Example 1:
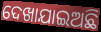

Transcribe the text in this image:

ଦେଖାଯାଇଅଛି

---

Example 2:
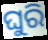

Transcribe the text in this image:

ଘୁରି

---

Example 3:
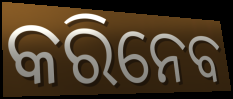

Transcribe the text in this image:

କରିନେବ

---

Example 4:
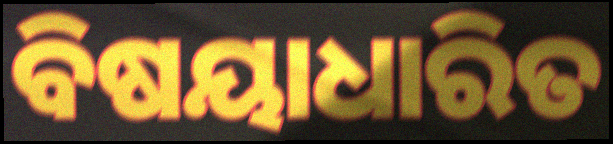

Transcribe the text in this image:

ବିଷୟାଧାରିତ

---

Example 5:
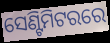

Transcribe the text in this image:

ସେଣ୍ଟିମିଟରରେ